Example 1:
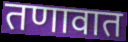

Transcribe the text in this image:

तणावात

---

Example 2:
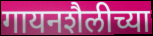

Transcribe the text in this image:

गायनशैलीच्या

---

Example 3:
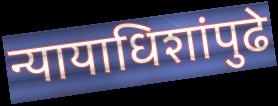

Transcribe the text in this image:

न्यायाधिशांपुढे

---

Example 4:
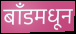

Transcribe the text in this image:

बाँडमधून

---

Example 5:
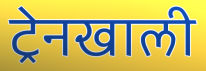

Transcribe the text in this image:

ट्रेनखाली